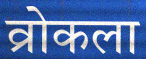
व्रोकला